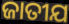
ଜାତୀଯ